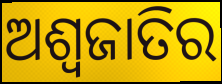
ଅଶ୍ୱଜାତିର